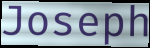
Joseph